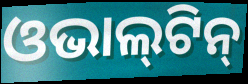
ଓଭାଲ୍‍ଟିନ୍